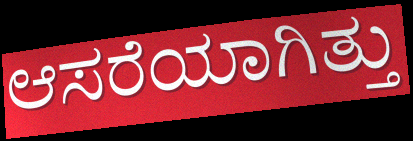
ಆಸರೆಯಾಗಿತ್ತು